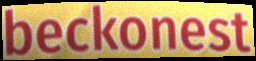
beckonest